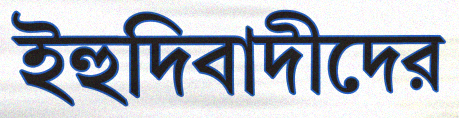
ইহুদিবাদীদের